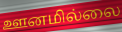
ஊனமில்லை